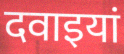
दवाइयां